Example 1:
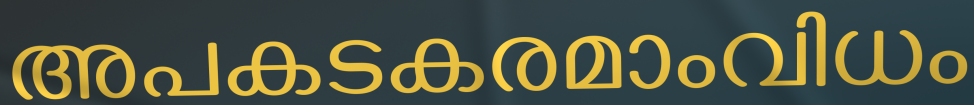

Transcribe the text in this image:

അപകടകരമാംവിധം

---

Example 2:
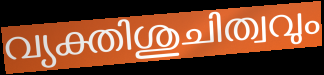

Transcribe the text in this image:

വ്യക്തിശുചിത്വവും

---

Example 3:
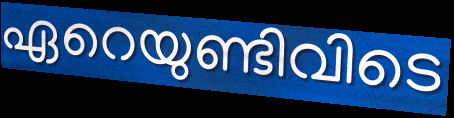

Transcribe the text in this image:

ഏറെയുണ്ടിവിടെ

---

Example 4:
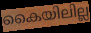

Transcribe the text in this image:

കൈയിലില്ല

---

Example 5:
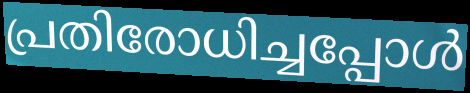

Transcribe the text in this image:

പ്രതിരോധിച്ചപ്പോൾ